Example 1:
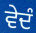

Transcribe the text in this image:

ਵੇਦੰ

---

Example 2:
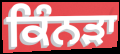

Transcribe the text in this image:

ਕਿੰਨੜਾ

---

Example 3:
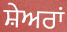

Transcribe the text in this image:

ਸ਼ੇਅਰਾਂ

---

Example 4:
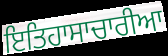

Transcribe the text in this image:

ਇਤਿਹਾਸਾਚਾਰੀਆ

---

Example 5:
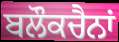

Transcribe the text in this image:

ਬਲੌਕਚੈਨਾਂ